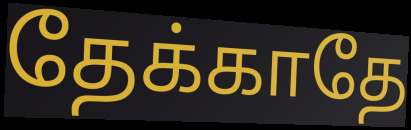
தேக்காதே